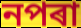
নপৰা